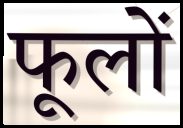
फूलों